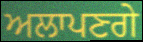
ਅਲਾਪਣਗੇ